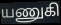
யணுகி